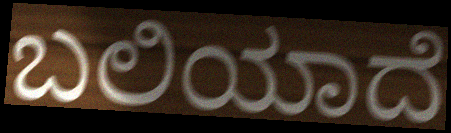
ಬಲಿಯಾದೆ